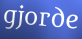
gjorde